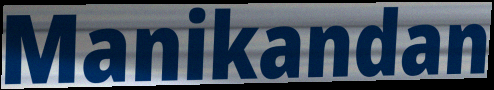
Manikandan